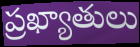
ప్రఖ్యాతులు